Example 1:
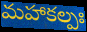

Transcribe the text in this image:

మహాకల్పః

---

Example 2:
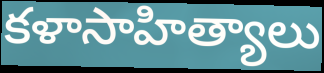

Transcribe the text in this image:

కళాసాహిత్యాలు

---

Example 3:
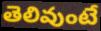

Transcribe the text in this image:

తెలివుంటే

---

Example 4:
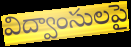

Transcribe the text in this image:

విద్వాంసులపై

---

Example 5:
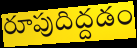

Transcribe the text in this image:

రూపుదిద్దడం